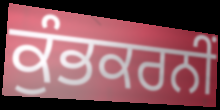
ਕੁੰਭਕਰਨੀਂ